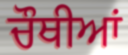
ਚੌਥੀਆਂ